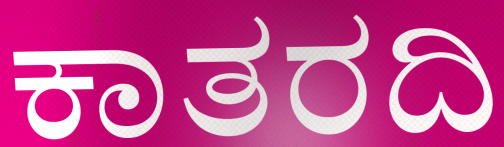
ಕಾತರದಿ